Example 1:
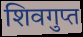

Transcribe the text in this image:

शिवगुप्त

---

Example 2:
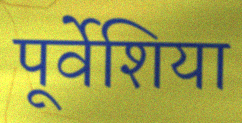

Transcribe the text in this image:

पूर्वेशिया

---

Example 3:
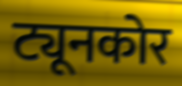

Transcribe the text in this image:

ट्यूनकोर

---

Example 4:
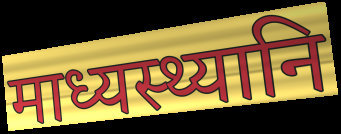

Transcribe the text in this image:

माध्यस्थ्यानि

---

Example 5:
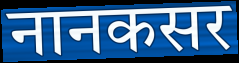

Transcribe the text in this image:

नानकसर